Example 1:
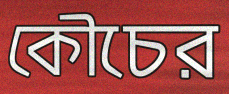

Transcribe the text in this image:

কৌচের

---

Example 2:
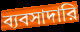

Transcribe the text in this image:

ব্যবসাদারি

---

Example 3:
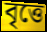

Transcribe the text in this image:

বৃত্তে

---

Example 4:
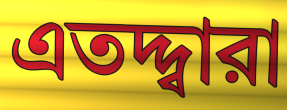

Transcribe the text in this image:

এতদ্দ্বারা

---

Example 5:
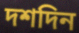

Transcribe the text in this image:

দশদিন